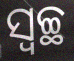
ସ୍ଵଚ୍ଛ